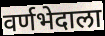
वर्णभेदाला